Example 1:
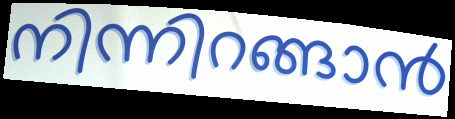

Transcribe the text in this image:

നിന്നിറങ്ങാൻ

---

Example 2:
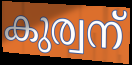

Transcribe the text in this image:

കുര്വന്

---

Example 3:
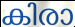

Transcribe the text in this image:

കിരാ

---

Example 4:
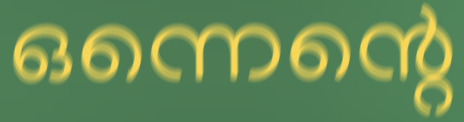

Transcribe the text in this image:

ഒന്നെന്റെ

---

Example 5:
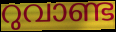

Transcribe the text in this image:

റുവാണ്ട